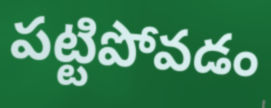
పట్టిపోవడం